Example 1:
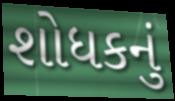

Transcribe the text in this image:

શોધકનું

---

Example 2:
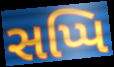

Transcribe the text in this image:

સપ્પિ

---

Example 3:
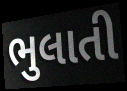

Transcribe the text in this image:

ભુલાતી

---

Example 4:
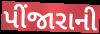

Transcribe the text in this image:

પીંજારાની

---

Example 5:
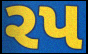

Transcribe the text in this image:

રપ